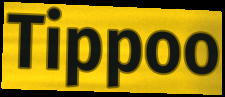
Tippoo